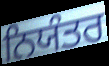
ਨਿਯੰਤਰ